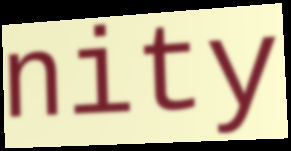
nity